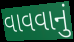
વાવવાનું